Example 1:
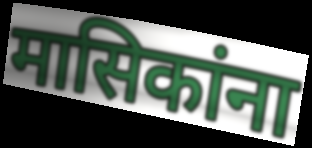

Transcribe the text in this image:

मासिकांना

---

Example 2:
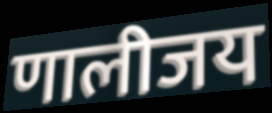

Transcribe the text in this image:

णालीजय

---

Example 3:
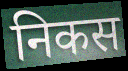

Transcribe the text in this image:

निकस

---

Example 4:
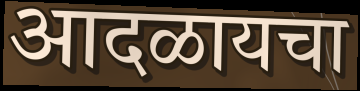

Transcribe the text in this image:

आदळायचा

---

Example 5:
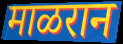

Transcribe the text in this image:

माळरान